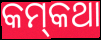
କମ୍‌କଥା